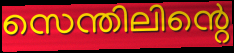
സെന്തിലിന്റെ